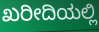
ಖರೀದಿಯಲ್ಲಿ